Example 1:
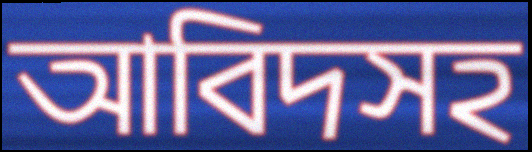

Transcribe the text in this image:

আবিদসহ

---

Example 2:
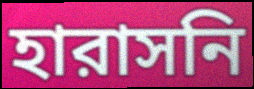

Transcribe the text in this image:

হারাসনি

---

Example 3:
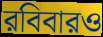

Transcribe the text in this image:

রবিবারও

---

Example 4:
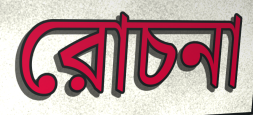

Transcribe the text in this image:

রোচনা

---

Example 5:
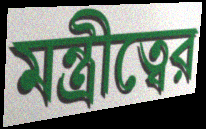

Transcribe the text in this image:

মন্ত্রীত্বের